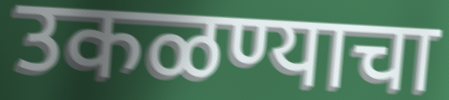
उकळण्याचा